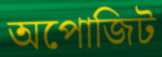
অপোজিট